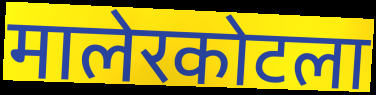
मालेरकोटला